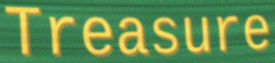
Treasure